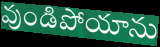
వుండిపోయాను